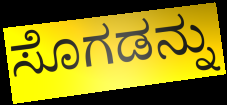
ಸೊಗಡನ್ನು